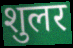
शुलर